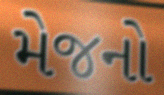
મેજનો